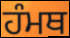
ਹੰਮਥ